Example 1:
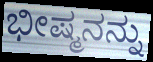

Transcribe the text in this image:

ಭೀಷ್ಮನನ್ನು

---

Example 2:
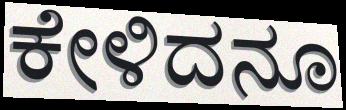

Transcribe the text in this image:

ಕೇಳಿದನೂ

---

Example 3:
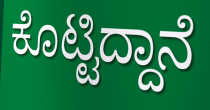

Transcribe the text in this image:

ಕೊಟ್ಟಿದ್ದಾನೆ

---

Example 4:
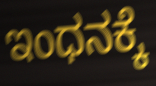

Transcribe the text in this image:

ಇಂಧನಕ್ಕೆ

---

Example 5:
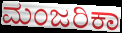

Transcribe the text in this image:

ಮಂಜರಿಕಾ